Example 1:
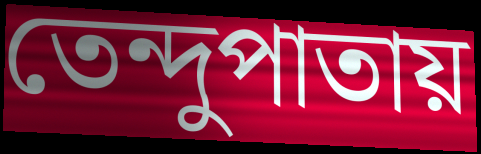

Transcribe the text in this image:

তেন্দুপাতায়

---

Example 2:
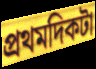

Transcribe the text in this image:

প্রথমদিকটা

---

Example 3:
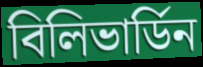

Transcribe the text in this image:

বিলিভার্ডিন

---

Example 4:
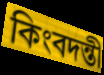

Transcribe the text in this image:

কিংবদন্তী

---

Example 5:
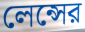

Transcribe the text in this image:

লেন্সের